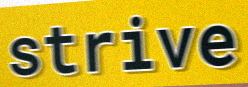
strive